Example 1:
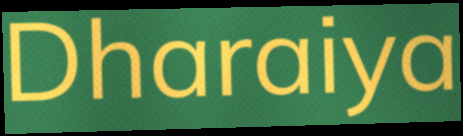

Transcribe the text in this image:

Dharaiya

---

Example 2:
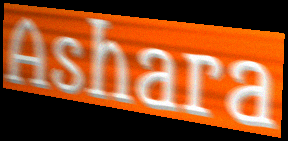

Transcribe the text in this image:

Ashara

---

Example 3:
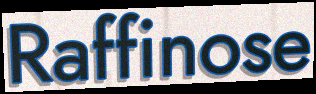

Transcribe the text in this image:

Raffinose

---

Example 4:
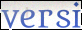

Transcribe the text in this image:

versi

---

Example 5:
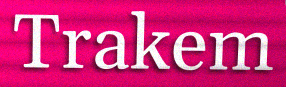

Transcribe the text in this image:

Trakem